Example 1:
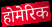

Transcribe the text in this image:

होमेरिक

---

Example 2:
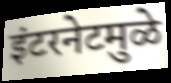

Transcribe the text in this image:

इंटरनेटमुळे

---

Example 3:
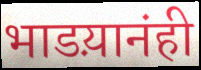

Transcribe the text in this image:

भाडय़ानंही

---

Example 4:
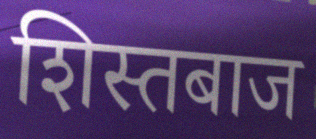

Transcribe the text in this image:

शिस्तबाज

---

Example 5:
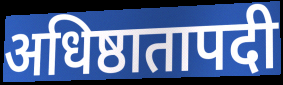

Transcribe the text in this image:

अधिष्ठातापदी